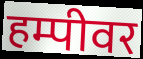
हम्पीवर